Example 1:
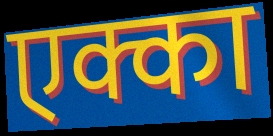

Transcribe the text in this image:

एक्का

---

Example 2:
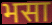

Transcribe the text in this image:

भसा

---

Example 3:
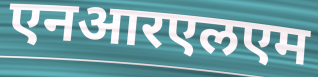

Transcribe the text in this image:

एनआरएलएम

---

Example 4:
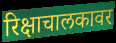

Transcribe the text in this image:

रिक्षाचालकावर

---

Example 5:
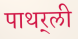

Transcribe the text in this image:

पाथर्ली